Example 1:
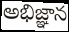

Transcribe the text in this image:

అభిజ్ఞాన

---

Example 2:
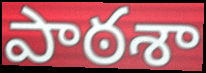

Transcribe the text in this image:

పాఠశా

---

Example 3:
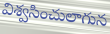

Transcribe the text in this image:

విశ్వసించులాగున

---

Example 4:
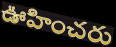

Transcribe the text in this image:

ఊహించరు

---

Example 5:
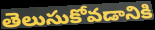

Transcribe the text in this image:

తెలుసుకోవడానికి